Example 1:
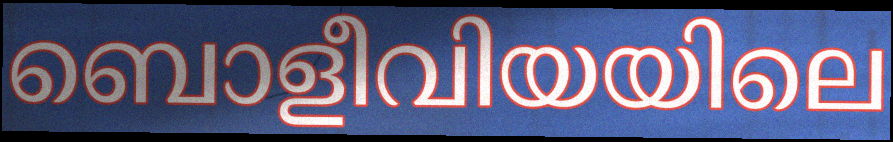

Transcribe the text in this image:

ബൊളീവിയയിലെ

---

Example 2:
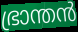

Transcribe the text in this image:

ഭ്രാന്തൻ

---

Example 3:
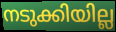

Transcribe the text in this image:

നടുക്കിയില്ല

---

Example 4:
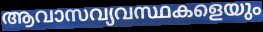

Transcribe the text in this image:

ആവാസവ്യവസ്ഥകളെയും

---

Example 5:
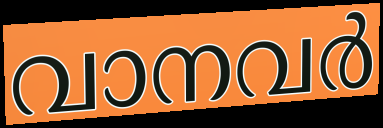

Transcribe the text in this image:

വാനവർ